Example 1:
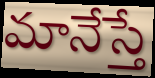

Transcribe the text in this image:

మానేస్తే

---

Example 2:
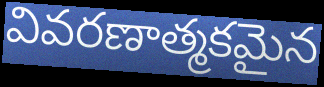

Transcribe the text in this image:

వివరణాత్మకమైన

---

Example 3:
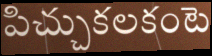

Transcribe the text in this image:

పిచ్చుకలకంటె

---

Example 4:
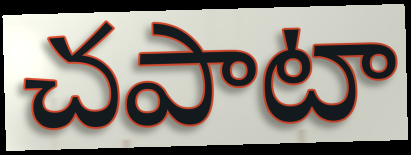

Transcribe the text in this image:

చపాటా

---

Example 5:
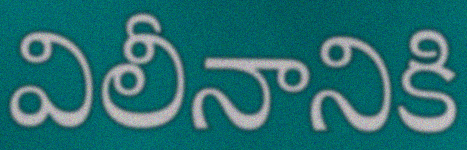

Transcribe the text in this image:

విలీనానికి